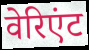
वेरिएंट